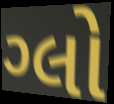
ગ્લો